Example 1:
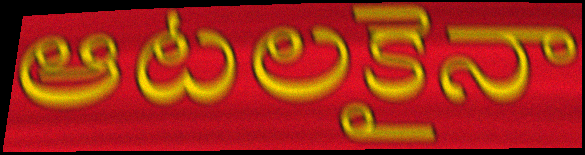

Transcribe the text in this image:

ఆటలకైనా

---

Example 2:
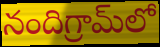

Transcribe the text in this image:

నందిగ్రామ్‌లో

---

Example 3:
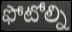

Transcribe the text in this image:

ఫోటోల్ని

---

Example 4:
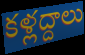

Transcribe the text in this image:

కళ్లద్దాలు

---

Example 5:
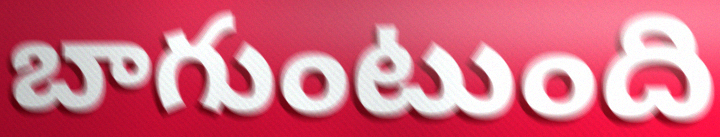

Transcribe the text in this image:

బాగుంటుంది